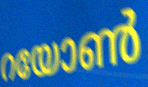
റയോൺ